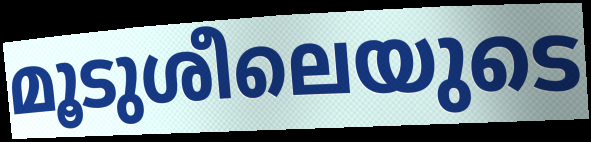
മൂടുശീലെയുടെ